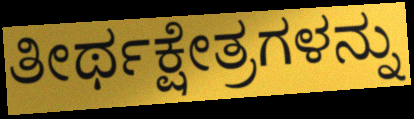
ತೀರ್ಥಕ್ಷೇತ್ರಗಳನ್ನು